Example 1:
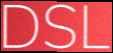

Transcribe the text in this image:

DSL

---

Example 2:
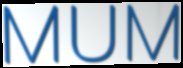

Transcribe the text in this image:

MUM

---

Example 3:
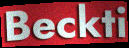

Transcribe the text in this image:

Beckti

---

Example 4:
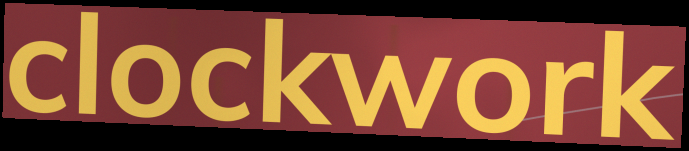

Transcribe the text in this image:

clockwork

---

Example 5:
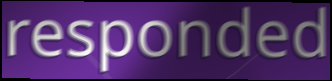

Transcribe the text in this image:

responded